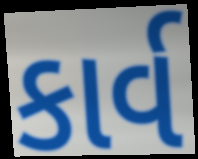
કાર્વ